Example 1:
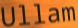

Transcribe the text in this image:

Ullam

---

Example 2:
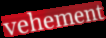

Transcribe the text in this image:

vehement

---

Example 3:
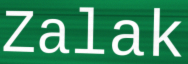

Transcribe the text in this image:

Zalak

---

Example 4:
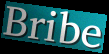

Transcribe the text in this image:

Bribe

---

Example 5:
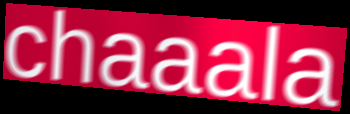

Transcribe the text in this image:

chaaala